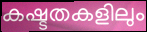
കഷ്ടതകളിലും